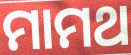
ମାମଥ